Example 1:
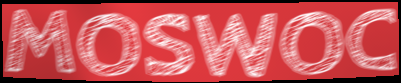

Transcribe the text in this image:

MOSWOC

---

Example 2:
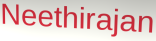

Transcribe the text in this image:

Neethirajan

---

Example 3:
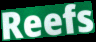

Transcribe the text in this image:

Reefs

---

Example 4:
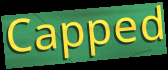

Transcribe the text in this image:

Capped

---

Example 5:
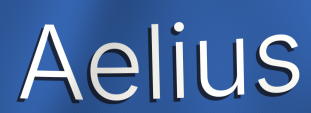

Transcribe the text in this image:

Aelius